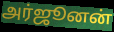
அர்ஜூனன்